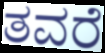
ತವರೆ